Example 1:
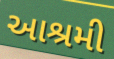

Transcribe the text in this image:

આશ્રમી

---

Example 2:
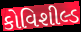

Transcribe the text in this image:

કોવિશીલ્ડ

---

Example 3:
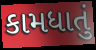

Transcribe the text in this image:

કામધાતું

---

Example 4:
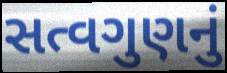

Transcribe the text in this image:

સત્વગુણનું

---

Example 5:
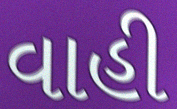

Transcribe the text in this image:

વાહી